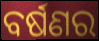
ବର୍ଷଣର